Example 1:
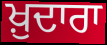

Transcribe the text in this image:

ਖ਼ੁਦਾਰਾ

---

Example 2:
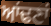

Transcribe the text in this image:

ਆਂਢਣਾਂ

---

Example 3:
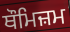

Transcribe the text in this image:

ਥੌਮਿਜ਼ਮ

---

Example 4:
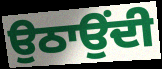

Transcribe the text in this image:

ਉਠਾਉਂਦੀ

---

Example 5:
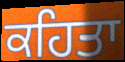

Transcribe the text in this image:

ਕਹਿਤਾ